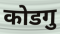
कोडगु